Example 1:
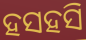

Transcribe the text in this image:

ହସହସି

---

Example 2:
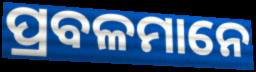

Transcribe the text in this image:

ପ୍ରବଳମାନେ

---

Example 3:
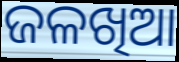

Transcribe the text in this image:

ଜଳଖିଆ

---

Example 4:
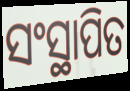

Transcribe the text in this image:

ସଂସ୍ଥାପିତ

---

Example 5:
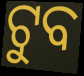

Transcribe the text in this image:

ଟୁବ